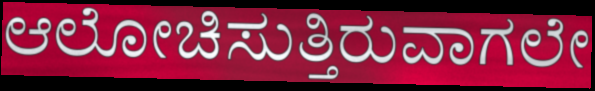
ಆಲೋಚಿಸುತ್ತಿರುವಾಗಲೇ